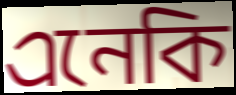
এনেকি